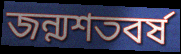
জন্মশতবর্ষ